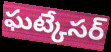
ఘట్కేసర్